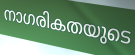
നാഗരികതയുടെ